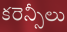
కరెన్సీలు